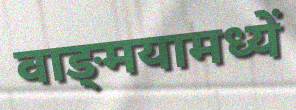
वाङ्‌मयामध्यें